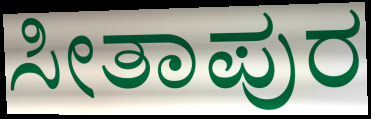
ಸೀತಾಪುರ